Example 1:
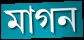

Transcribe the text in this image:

মাগন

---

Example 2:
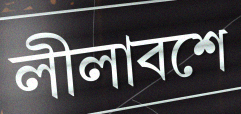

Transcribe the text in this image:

লীলাবশে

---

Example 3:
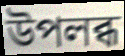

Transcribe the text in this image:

উপলব্ধ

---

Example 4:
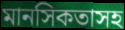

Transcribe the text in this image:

মানসিকতাসহ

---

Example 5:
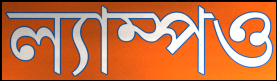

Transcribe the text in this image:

ল্যাম্পও